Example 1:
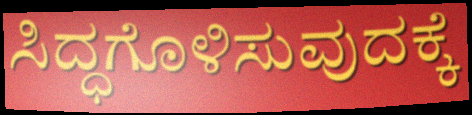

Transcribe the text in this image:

ಸಿದ್ಧಗೊಳಿಸುವುದಕ್ಕೆ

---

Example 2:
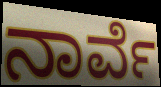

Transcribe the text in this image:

ನಾರ್ವೆ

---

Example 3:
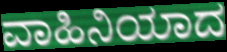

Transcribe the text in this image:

ವಾಹಿನಿಯಾದ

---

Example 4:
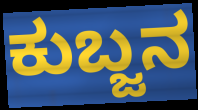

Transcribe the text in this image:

ಕುಬ್ಜನ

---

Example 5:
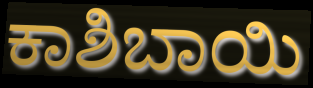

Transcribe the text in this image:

ಕಾಶಿಬಾಯಿ